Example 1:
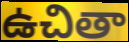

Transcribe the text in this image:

ఉచితా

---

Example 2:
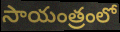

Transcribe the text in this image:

సాయంత్రంలో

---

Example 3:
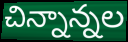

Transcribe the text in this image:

చిన్నాన్నల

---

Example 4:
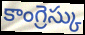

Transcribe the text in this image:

కాంగ్రెస్కు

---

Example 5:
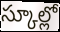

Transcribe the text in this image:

స్కూల్లో